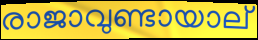
രാജാവുണ്ടായാല്